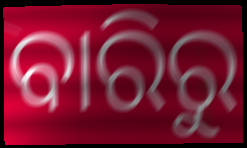
ବାରିରୁ